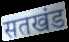
सतखंड